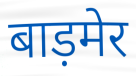
बाड़मेर